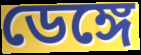
ডেঙ্গে